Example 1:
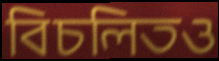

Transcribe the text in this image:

বিচলিতও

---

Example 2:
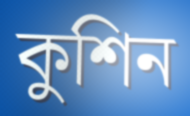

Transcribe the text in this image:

কুশিন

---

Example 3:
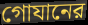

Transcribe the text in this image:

গোযানের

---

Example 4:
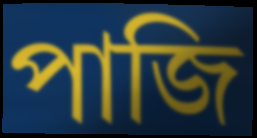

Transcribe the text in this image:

পাজি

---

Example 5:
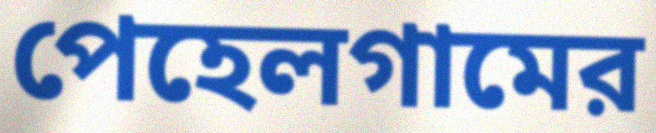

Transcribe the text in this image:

পেহেলগামের